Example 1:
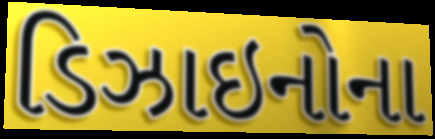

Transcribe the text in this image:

ડિઝાઇનોના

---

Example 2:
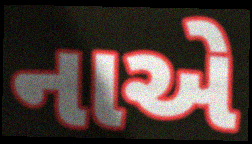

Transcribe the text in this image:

નાએ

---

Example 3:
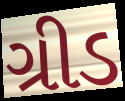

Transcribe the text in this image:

ગ્રીડ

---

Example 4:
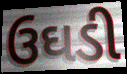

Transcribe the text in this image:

ઉઘડી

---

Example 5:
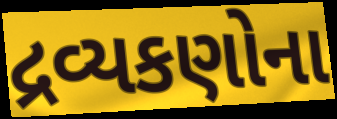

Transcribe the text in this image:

દ્રવ્યકણોના